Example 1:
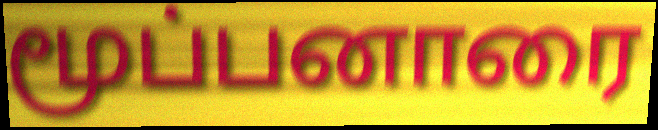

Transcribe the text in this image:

மூப்பனாரை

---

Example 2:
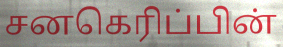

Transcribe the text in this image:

சனகெரிப்பின்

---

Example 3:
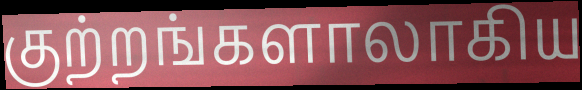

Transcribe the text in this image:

குற்றங்களாலாகிய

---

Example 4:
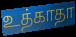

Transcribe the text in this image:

உத்காதா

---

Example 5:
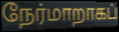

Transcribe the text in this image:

நேர்மாறாகப்